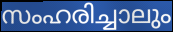
സംഹരിച്ചാലും